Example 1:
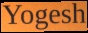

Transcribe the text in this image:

Yogesh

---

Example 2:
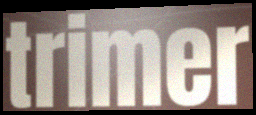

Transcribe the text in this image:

trimer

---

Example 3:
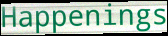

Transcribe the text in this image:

Happenings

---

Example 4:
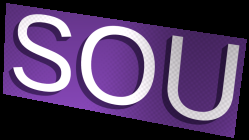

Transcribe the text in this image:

SOU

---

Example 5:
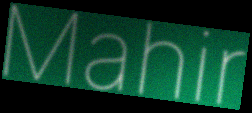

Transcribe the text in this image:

Mahir